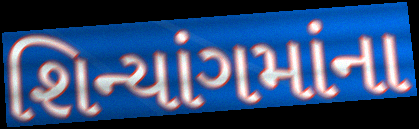
શિન્યાંગમાંના